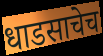
धाडसाचेच